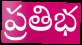
ప్రతిభ